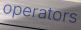
operators